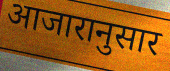
आजारानुसार